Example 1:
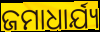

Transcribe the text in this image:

ଜମାଧାର୍ଯ୍ୟ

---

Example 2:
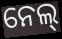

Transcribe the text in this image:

ନେଲ୍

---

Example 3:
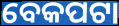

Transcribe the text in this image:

ବେକପଟା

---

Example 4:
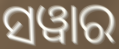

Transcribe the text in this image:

ସୱାର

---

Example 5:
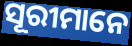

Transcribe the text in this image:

ସୂରୀମାନେ